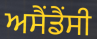
ਅਸੈਂਡੈਂਸੀ